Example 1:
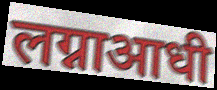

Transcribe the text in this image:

लग्नाआधी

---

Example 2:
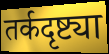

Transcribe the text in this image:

तर्कदृष्ट्या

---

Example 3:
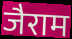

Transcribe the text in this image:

जैराम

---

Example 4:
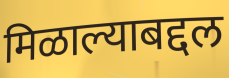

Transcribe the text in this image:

मिळाल्याबद्दल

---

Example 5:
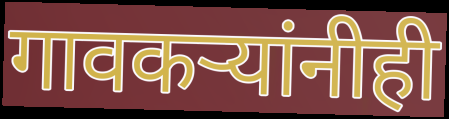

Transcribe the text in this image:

गावकऱ्यांनीही